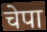
चेपा